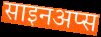
साइनअप्स